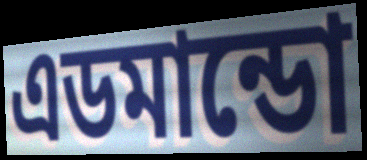
এডমান্ডো